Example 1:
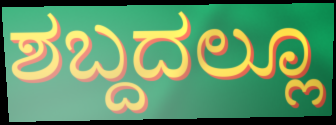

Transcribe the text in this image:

ಶಬ್ದದಲ್ಲೂ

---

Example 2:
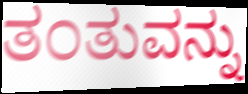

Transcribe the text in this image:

ತಂತುವನ್ನು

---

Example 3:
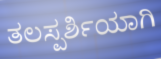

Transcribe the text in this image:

ತಲಸ್ಪರ್ಶಿಯಾಗಿ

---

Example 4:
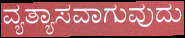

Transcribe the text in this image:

ವ್ಯತ್ಯಾಸವಾಗುವುದು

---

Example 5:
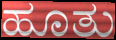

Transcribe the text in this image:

ಹೂತು